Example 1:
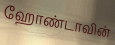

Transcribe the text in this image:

ஹோண்டாவின்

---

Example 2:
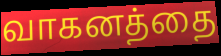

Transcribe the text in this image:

வாகனத்தை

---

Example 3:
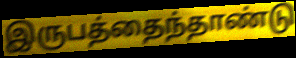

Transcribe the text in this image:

இருபத்தைந்தாண்டு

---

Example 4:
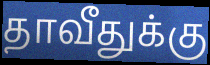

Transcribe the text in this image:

தாவீதுக்கு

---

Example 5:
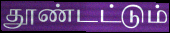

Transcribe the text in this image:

தூண்டட்டும்